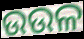
ଉଉଳ